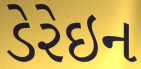
ડેરેઇન